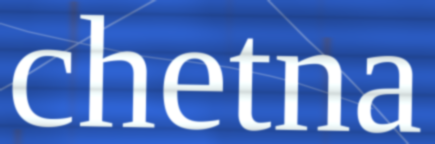
chetna